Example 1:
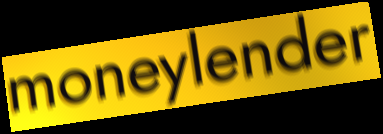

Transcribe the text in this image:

moneylender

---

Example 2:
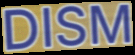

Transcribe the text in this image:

DISM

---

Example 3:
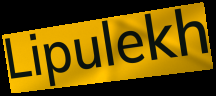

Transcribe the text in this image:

Lipulekh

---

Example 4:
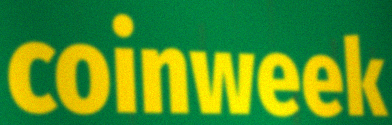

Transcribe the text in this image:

coinweek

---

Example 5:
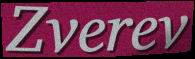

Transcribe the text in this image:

Zverev